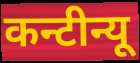
कन्टीन्यू